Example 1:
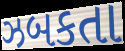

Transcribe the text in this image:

ઝબકતા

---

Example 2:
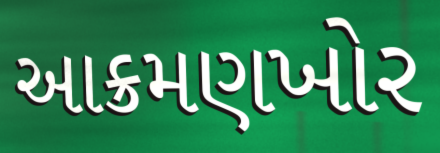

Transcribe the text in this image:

આક્રમણખોર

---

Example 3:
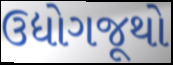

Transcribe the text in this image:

ઉદ્યોગજૂથો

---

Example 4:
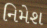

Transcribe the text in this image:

નિમેશ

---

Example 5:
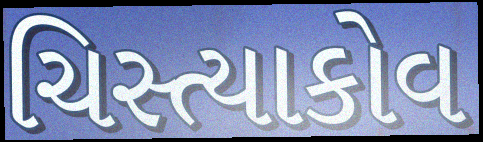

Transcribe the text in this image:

ચિસ્ત્યાકોવ